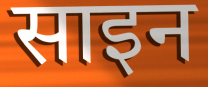
साइन